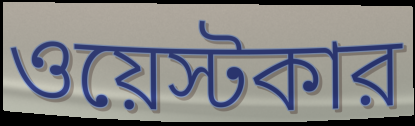
ওয়েস্টকার